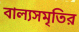
বাল্যসমৃতির